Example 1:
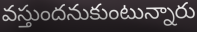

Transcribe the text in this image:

వస్తుందనుకుంటున్నారు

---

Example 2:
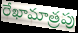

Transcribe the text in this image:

రేఖామాత్రపు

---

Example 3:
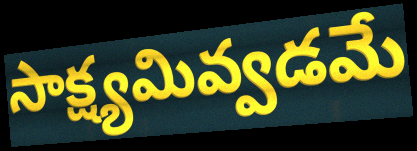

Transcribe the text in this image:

సాక్ష్యమివ్వడమే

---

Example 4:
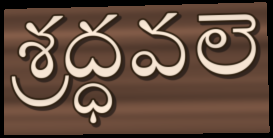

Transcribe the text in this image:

శ్రద్ధవలె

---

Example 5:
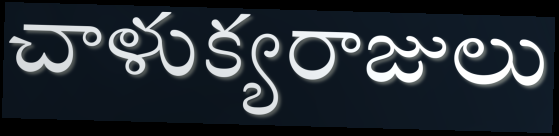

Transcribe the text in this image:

చాళుక్యరాజులు